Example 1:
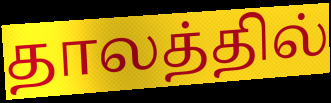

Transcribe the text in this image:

தாலத்தில்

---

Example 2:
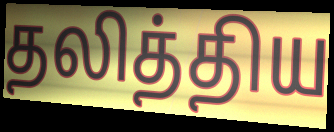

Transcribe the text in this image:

தலித்திய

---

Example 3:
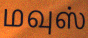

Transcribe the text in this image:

மவுஸ்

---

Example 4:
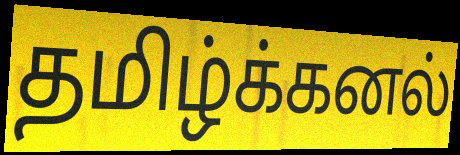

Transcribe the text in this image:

தமிழ்க்கனல்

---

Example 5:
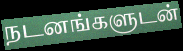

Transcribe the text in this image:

நடனங்களுடன்